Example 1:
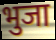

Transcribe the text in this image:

भुजा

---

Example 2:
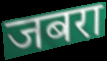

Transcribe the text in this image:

जबरा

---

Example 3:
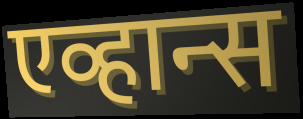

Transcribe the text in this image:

एव्हान्स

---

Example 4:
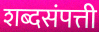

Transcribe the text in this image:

शब्दसंपत्ती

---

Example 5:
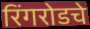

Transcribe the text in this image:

रिंगरोडचे